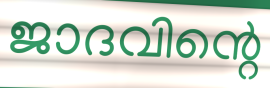
ജാദവിന്റെ